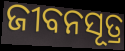
ଜୀବନସୂତ୍ର